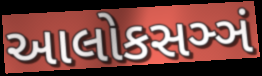
આલોકસઞ્ઞં